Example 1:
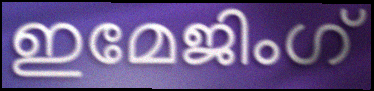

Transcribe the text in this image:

ഇമേജിംഗ്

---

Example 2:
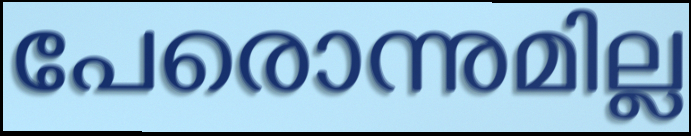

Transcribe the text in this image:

പേരൊന്നുമില്ല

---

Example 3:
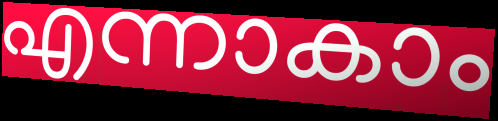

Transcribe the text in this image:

എന്നാകാം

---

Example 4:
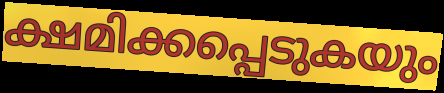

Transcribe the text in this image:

ക്ഷമിക്കപ്പെടുകയും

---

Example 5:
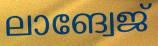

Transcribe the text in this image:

ലാങ്വേജ്